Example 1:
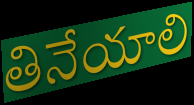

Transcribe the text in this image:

తినేయాలి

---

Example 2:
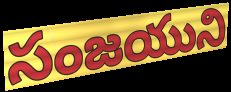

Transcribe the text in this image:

సంజయుని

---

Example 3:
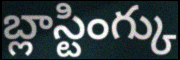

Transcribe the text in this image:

బ్లాస్టింగ్కు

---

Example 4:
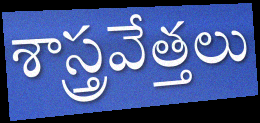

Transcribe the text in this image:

శాస్త్రవేత్తలు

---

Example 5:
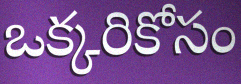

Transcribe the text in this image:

ఒక్కరికోసం